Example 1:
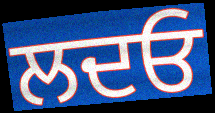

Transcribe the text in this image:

ਲਦਓ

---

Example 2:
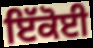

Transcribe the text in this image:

ਇੱਕੋਈ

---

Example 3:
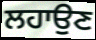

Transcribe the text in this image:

ਲਹਾਉਣ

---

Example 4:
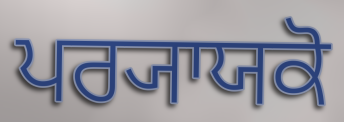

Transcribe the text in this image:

ਪਰ੍ਯਾਯਕੋ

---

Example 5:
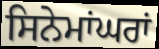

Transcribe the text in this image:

ਸਿਨੇਮਾਂਘਰਾਂ